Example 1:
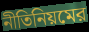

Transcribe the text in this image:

নীতিনিয়মের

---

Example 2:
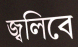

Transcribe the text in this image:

জ্বলিবে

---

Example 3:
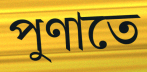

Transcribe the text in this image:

পুণাতে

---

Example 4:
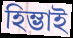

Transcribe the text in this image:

হিম্ভাই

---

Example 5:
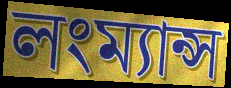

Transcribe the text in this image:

লংম্যান্স